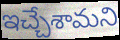
ఇచ్చేశామని